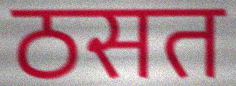
ठसत